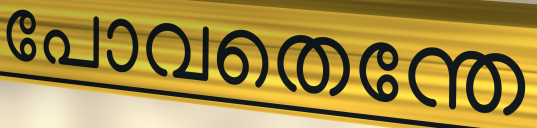
പോവതെന്തേ